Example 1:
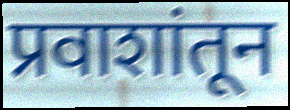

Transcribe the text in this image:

प्रवाशांतून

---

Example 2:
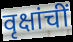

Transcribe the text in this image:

वृक्षांचीं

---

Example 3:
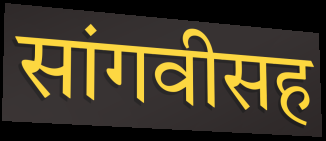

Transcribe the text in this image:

सांगवीसह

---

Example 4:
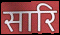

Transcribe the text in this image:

सारि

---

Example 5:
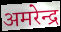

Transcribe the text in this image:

अमरेन्द्र